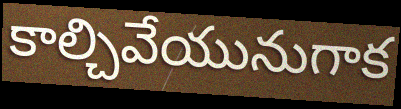
కాల్చివేయునుగాక